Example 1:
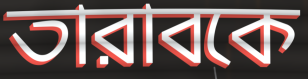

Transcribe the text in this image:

তারাবকে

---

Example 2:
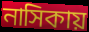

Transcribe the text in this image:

নাসিকায়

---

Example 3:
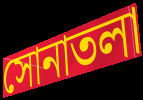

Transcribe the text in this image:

সোনাতলা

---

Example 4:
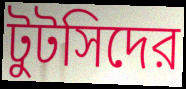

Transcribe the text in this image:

টুটসিদের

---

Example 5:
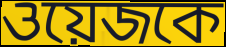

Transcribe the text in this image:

ওয়েজকে